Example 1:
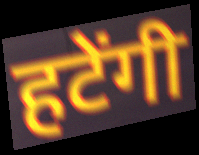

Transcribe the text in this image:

हटेंगी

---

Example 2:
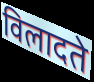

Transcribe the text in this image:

विलादते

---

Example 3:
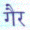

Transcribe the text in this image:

गैर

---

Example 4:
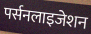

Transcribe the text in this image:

पर्सनलाइजेशन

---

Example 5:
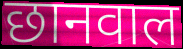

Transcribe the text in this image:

छानवाल